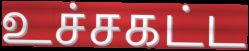
உச்சகட்ட